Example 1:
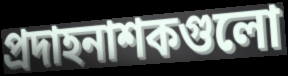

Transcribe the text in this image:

প্রদাহনাশকগুলো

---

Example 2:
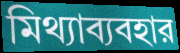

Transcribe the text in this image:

মিথ্যাব্যবহার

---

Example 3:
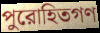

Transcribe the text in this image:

পুরোহিতগণ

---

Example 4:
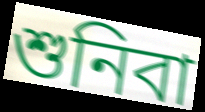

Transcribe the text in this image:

শুনিবা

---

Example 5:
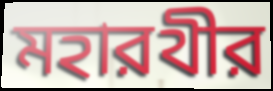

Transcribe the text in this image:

মহারথীর